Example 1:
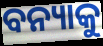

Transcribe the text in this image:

ବନ୍ୟାକୁ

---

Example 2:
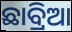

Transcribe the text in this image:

ଛାବ୍ରିଆ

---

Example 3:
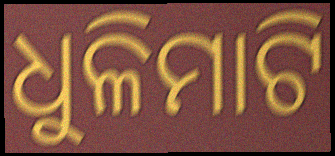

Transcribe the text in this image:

ଧୁଳିମାଟି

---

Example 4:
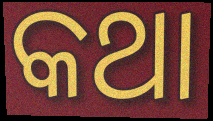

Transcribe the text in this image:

କଥା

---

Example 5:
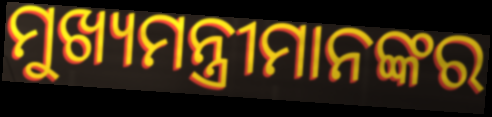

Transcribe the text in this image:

ମୁଖ୍ୟମନ୍ତ୍ରୀମାନଙ୍କର